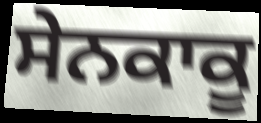
ਸੇਨਕਾਕੂ